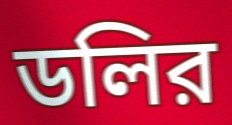
ডলির